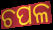
ଚପଳ